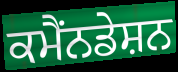
ਕਮੈਂਨਡੇਸ਼ਨ